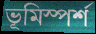
ভূমিস্পর্শ